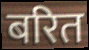
बरित